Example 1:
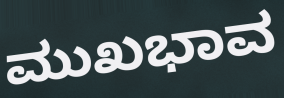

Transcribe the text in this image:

ಮುಖಭಾವ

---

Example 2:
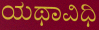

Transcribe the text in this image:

ಯಥಾವಿಧಿ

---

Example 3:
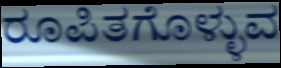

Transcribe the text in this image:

ರೂಪಿತಗೊಳ್ಳುವ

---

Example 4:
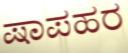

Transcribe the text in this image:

ಷಾಪಹರ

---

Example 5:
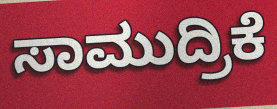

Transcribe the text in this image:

ಸಾಮುದ್ರಿಕೆ